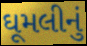
ઘૂમલીનું